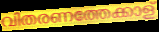
വിതരണത്തേക്കാള്